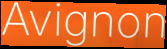
Avignon